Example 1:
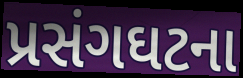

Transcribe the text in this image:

પ્રસંગઘટના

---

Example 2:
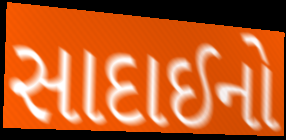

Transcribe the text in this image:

સાદાઈનો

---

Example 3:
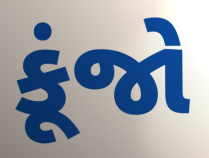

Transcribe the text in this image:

કૂંજો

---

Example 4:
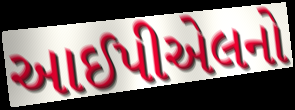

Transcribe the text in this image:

આઈપીએલનો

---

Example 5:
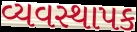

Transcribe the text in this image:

વ્યવસ્થાપક